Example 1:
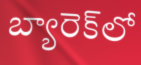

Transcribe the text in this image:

బ్యారెక్‌లో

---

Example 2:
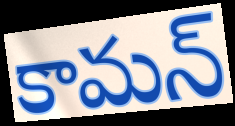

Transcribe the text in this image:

కామన్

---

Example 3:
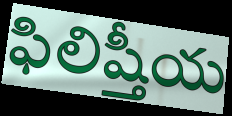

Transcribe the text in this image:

ఫిలిష్తీయ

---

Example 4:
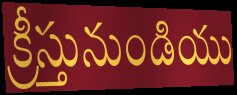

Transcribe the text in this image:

క్రీస్తునుండియు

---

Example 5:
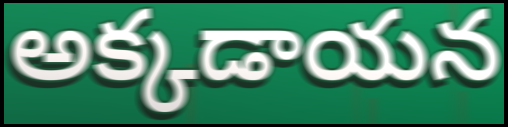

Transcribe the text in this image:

అక్కడాయన